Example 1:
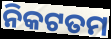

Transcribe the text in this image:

ନିକଟତମ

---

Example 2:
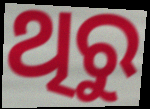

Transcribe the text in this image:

ଥିରୁ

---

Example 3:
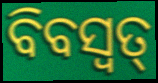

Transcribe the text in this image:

ବିବସ୍ଵତ୍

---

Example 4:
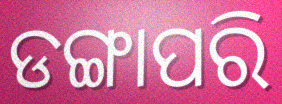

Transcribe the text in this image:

ଡଙ୍ଗାପରି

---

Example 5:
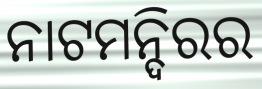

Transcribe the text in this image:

ନାଟମନ୍ଦିରର